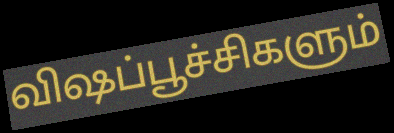
விஷப்பூச்சிகளும்